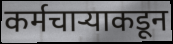
कर्मचाऱ्याकडून